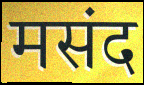
मसंद